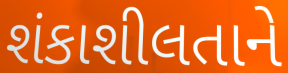
શંકાશીલતાને